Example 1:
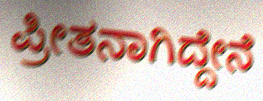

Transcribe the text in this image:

ಪ್ರೀತನಾಗಿದ್ದೇನೆ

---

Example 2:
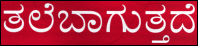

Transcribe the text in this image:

ತಲೆಬಾಗುತ್ತದೆ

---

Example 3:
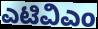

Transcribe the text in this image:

ಎಟಿವಿಎಂ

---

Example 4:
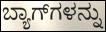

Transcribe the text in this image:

ಬ್ಯಾಗ್‌ಗಳನ್ನು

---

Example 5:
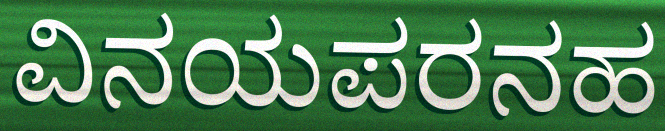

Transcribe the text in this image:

ವಿನಯಪರನಹ